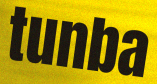
tunba